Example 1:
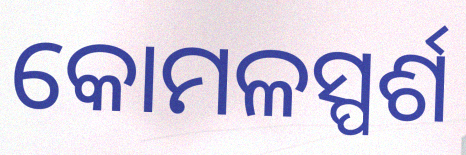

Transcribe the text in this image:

କୋମଳସ୍ପର୍ଶ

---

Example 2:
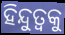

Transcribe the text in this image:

ହିନ୍ଦୁତ୍ୱକୁ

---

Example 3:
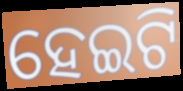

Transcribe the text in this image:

ହେଇଟି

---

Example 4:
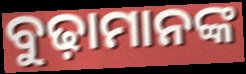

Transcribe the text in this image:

ବୁଢ଼ାମାନଙ୍କ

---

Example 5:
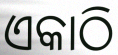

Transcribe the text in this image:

ଏକାଠି